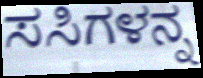
ಸಸಿಗಳನ್ನ